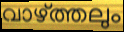
വാഴ്ത്തലും